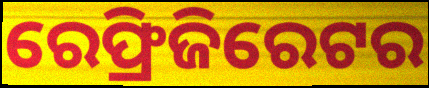
ରେଫ୍ରିଜିରେଟର